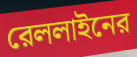
রেললাইনের